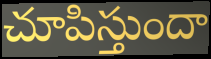
చూపిస్తుందా